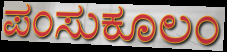
ಪಂಸುಕೂಲಂ